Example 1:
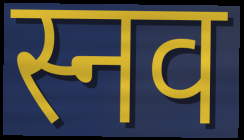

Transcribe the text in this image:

स्नव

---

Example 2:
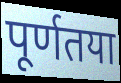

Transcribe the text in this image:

पूर्णतया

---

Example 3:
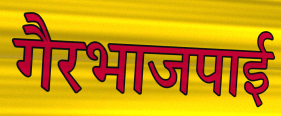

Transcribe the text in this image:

गैरभाजपाई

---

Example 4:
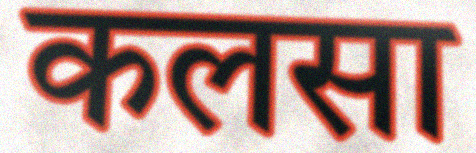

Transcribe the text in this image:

कलसा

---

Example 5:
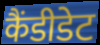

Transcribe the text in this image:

कैंडीडेट